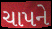
ચાપને